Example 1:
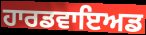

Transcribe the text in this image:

ਹਾਰਡਵਾਇਅਡ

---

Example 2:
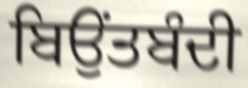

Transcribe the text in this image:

ਬਿਉਂਤਬੰਦੀ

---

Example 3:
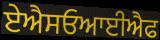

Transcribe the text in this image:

ਏਐਸਓਆਈਐਫ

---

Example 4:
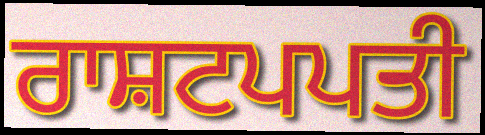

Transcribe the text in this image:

ਰਾਸ਼ਟਪਪਤੀ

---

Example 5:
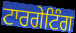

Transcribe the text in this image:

ਟਾਰਗੇਟਿੰਗ